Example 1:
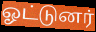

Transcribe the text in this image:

ஓட்டுனர்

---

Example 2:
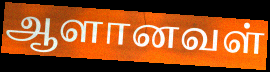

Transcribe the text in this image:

ஆளானவள்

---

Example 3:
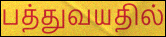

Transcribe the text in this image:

பத்துவயதில்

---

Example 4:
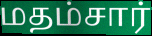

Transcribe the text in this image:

மதம்சார்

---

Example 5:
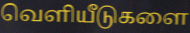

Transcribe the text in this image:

வெளியீடுகளை